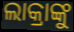
ଲାକ୍ରାଙ୍କୁ